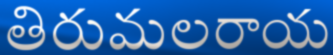
తిరుమలరాయ